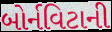
બોર્નવિટાની